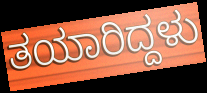
ತಯಾರಿದ್ದಳು